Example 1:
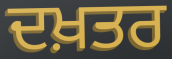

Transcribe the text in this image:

ਦਖ਼ਤਰ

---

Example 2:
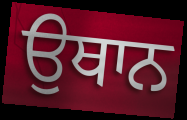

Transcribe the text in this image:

ਉਥਾਨ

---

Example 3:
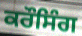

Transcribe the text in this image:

ਕਰੌਸਿੰਗ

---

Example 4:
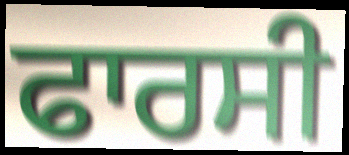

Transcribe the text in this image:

ਫਾਰਸੀ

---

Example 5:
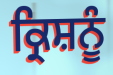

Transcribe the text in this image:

ਕ੍ਰਿਸ਼ਨੂੰ